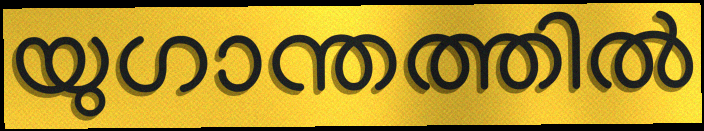
യുഗാന്തത്തിൽ